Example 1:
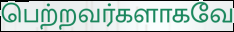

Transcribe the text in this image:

பெற்றவர்களாகவே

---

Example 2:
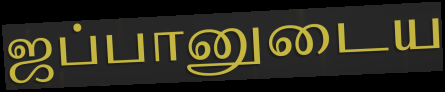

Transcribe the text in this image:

ஜப்பானுடைய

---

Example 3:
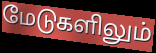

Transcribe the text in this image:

மேடுகளிலும்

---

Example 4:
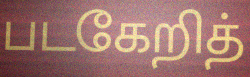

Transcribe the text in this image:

படகேறித்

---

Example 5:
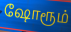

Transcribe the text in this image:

ஷோரூம்